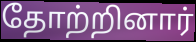
தோற்றினார்